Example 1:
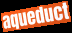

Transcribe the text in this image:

aqueduct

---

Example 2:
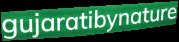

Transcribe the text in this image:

gujaratibynature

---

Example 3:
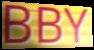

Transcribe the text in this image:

BBY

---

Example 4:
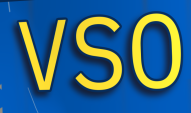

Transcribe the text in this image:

VSO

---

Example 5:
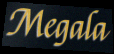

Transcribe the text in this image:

Megala